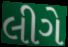
લીગે